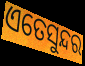
ଏତେସୁନ୍ଦର